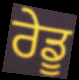
ਰੇਡੂ